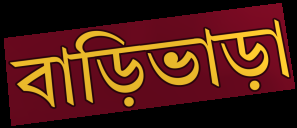
বাড়িভাড়া